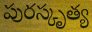
పురస్కృత్య